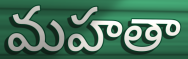
మహతా